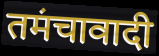
तमंचावादी